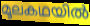
മൂലകഥയിൽ